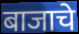
बाजाचे